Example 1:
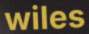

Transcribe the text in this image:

wiles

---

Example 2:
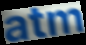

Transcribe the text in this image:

atm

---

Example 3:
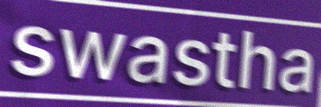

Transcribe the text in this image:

swastha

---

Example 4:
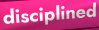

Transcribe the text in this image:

disciplined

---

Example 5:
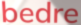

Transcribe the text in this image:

bedre